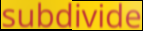
subdivide